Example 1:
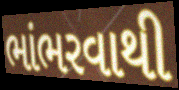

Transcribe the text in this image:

ભાંભરવાથી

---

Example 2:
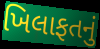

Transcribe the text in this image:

ખિલાફતનું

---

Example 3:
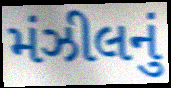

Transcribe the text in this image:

મંઝીલનું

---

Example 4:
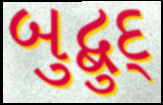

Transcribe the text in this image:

બુદ્બુદ્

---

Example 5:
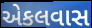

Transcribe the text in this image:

એકલવાસ